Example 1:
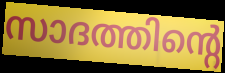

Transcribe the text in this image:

സാദത്തിന്റെ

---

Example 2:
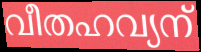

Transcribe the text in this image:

വീതഹവ്യന്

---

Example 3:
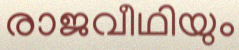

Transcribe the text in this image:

രാജവീഥിയും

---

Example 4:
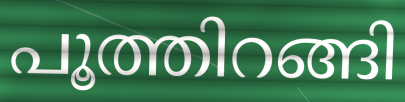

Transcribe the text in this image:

പൂത്തിറങ്ങി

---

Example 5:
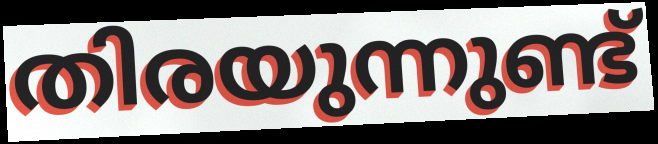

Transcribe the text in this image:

തിരയുന്നുണ്ട്